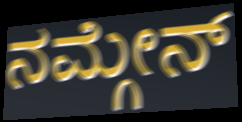
ನಮ್ಗೇನ್